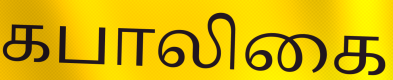
கபாலிகை